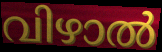
വിഴാൽ